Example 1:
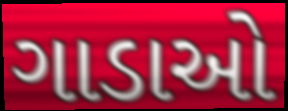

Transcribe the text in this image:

ગાડાઓ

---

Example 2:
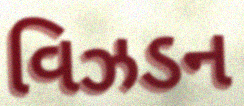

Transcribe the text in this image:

વિઝડન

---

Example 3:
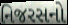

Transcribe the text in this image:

નિજરસનો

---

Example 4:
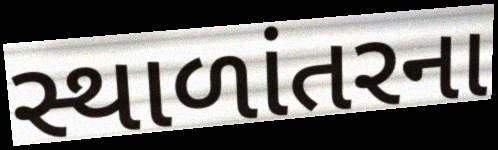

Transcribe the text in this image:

સ્થાળાંતરના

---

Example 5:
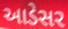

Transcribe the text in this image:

આડેસર